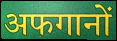
अफगानों